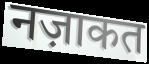
नज़ाकत